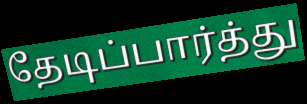
தேடிப்பார்த்து